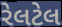
રેલટેલ